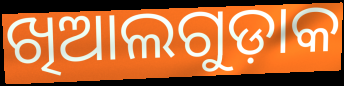
ଖିଆଲଗୁଡ଼ାକ